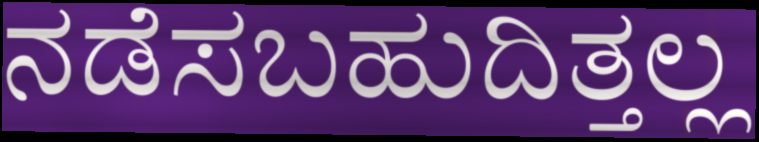
ನಡೆಸಬಹುದಿತ್ತಲ್ಲ